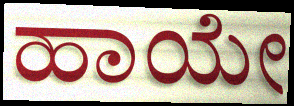
ಹಾಯೇ